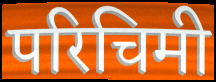
परिचिमी